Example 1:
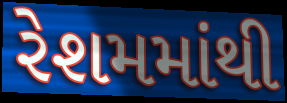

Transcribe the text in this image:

રેશમમાંથી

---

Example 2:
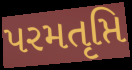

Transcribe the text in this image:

પરમતૃપ્તિ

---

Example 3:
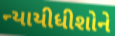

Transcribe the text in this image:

ન્યાયીધીશોને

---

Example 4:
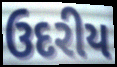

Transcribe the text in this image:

ઉદરીય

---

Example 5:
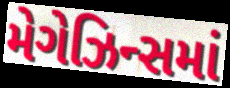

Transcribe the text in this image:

મેગેઝિન્સમાં